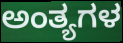
ಅಂತ್ಯಗಳ